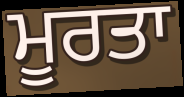
ਮੂਰਤਾ